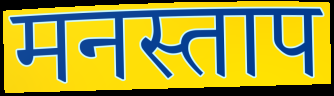
मनस्ताप